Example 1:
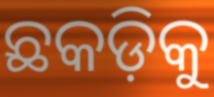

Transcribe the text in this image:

ଛକଡ଼ିକୁ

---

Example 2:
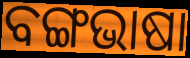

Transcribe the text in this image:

ବଙ୍ଗଭାଷା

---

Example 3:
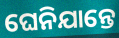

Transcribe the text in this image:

ଘେନିଯାନ୍ତେ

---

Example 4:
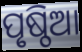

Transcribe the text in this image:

ପୃଷ୍ଠିଆ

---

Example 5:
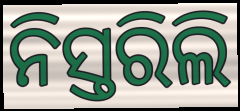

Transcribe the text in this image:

ନିସ୍ତରିଲି